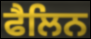
ਫੈਲਿਨ